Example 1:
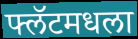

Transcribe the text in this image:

फ्लॅटमधला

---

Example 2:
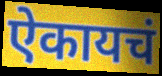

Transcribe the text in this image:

ऐकायचं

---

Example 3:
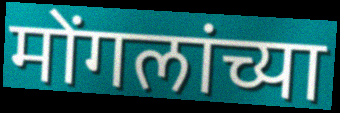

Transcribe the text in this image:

मोंगलांच्या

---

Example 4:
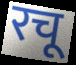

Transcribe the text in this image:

रचू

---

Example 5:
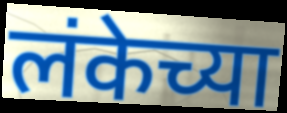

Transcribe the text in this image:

लंकेच्या